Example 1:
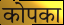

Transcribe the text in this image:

कोपका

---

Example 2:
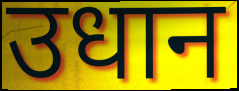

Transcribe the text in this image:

उधान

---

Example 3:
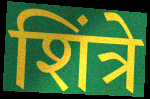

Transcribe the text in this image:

शिंत्रे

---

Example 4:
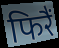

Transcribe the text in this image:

फिरैं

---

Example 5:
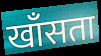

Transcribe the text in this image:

खाँसता